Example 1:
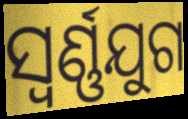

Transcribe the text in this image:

ସ୍ଵର୍ଣ୍ଣଯୁଗ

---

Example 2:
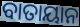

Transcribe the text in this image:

ବାତାୟାନ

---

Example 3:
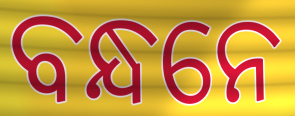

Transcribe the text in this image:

ବନ୍ଧନେ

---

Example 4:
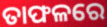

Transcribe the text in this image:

ତାଫଳରେ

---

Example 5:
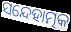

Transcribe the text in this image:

ସନ୍ଦେହାତ୍ମକ